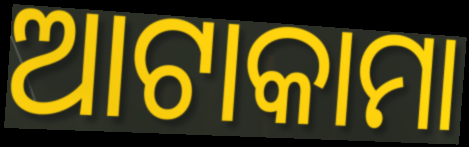
ଆଟାକାମା